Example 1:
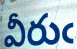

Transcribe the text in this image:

వీరుఁ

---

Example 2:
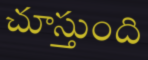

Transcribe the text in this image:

చూస్తుంది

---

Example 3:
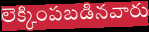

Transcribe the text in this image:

లెక్కింపబడినవారు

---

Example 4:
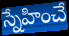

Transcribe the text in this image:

స్నేహించే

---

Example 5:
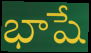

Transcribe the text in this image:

భాషే